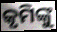
କୃମିଙ୍କୁ